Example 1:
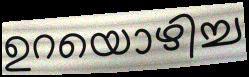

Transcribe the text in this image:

ഉറയൊഴിച്ച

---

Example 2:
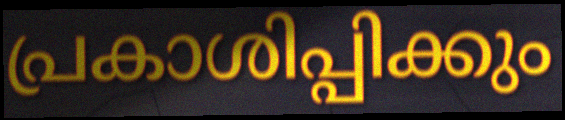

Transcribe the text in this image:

പ്രകാശിപ്പിക്കും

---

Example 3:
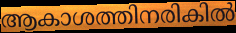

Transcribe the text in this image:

ആകാശത്തിനരികിൽ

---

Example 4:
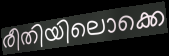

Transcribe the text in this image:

രീതിയിലൊക്കെ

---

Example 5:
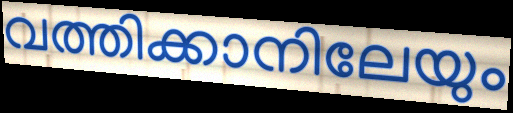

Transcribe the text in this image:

വത്തിക്കാനിലേയും